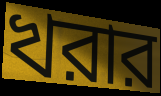
খরার